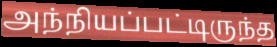
அந்நியப்பட்டிருந்த